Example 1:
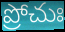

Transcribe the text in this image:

ప్రోచుః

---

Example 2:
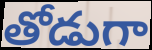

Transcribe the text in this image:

తోడుగా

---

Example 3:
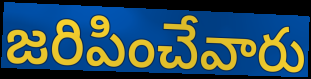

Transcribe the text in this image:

జరిపించేవారు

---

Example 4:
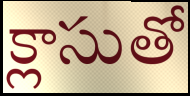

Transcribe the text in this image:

క్లాసుతో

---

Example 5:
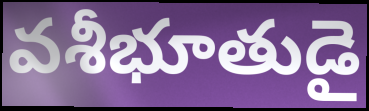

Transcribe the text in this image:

వశీభూతుడై